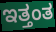
ಇತ್ತಂತ